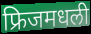
फ्रिजमधली